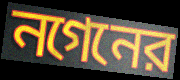
নগেনের